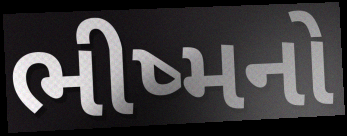
ભીષ્મનો